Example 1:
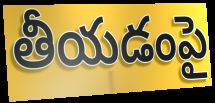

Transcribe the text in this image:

తీయడంపై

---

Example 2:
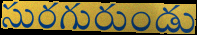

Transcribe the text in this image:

సురగురుండు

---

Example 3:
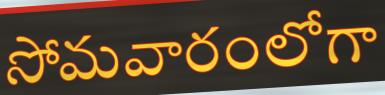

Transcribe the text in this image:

సోమవారంలోగా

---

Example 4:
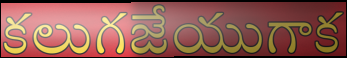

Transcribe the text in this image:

కలుగజేయుగాక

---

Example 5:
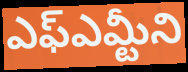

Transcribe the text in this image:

ఎఫ్ఎమ్టీని